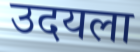
उदयला